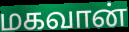
மகவான்